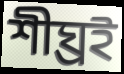
শীঘ্ৰই